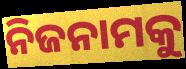
ନିଜନାମକୁ